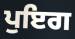
ਪੁਇਗ